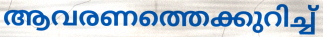
ആവരണത്തെക്കുറിച്ച്